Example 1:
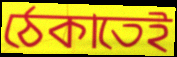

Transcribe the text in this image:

ঠেকাতেই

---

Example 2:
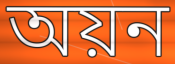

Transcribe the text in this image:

অয়ন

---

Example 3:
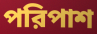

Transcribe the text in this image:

পরিপাশ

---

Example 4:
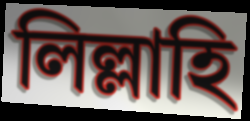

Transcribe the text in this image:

লিল্লাহি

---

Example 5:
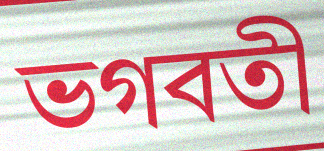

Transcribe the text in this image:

ভগবতী